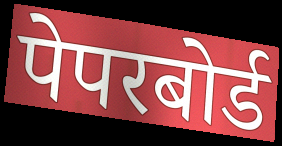
पेपरबोर्ड